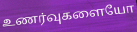
உணர்வுகளையோ